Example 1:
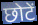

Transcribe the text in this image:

छोटें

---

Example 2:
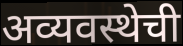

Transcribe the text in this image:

अव्यवस्थेची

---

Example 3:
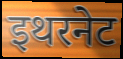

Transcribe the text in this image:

इथरनेट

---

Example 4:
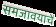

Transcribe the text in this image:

समजावयाचें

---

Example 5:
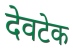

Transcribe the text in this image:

देवटेक